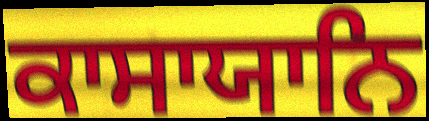
ਕਾਸਾਯਾਨਿ